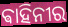
ଵାହିନୀର